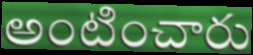
అంటించారు